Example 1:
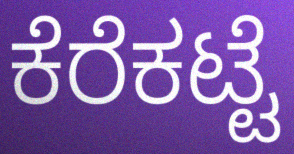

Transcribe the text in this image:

ಕೆರೆಕಟ್ಟೆ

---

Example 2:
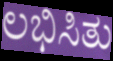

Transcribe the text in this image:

ಲಭಿಸಿತು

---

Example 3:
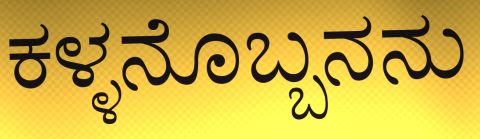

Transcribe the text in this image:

ಕಳ್ಳನೊಬ್ಬನನು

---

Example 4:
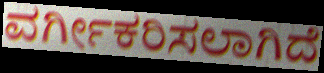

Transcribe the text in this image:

ವರ್ಗೀಕರಿಸಲಾಗಿದೆ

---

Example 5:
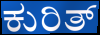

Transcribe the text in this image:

ಕುರಿತ್